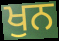
ਖੁਨ